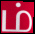
ம்